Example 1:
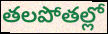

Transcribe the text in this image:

తలపోతల్లో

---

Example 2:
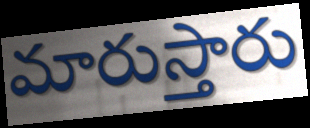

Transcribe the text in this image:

మారుస్తారు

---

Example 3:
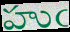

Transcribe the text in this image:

హుఁ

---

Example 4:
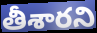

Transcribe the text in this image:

తీశారని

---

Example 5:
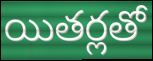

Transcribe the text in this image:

యితర్లతో